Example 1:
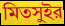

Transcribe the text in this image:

মিতসুইর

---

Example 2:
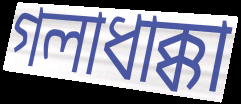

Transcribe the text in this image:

গলাধাক্কা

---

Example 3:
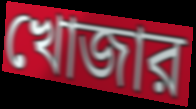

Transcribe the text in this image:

খোজার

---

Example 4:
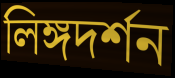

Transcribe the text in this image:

লিঙ্গদর্শন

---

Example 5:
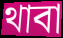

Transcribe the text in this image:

থাবা